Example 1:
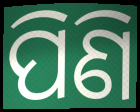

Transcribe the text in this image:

ପିଣି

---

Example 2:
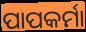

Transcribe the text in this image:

ପାପକର୍ମା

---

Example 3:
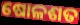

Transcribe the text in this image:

ଷୋଳଶତ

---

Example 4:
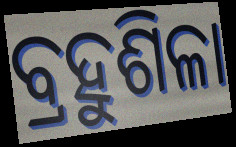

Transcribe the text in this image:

ବ୍ରହୁଶିଳା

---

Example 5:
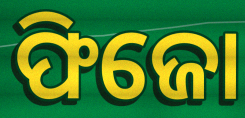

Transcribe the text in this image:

ଫିଜୋ